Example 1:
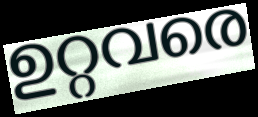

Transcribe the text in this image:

ഉറ്റവരെ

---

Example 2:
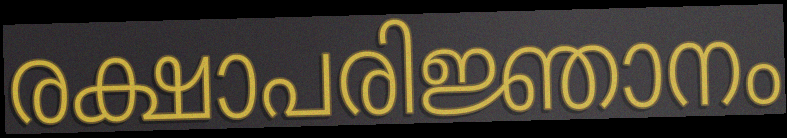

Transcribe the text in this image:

രക്ഷാപരിജ്ഞാനം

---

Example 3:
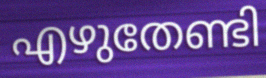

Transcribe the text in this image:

എഴുതേണ്ടി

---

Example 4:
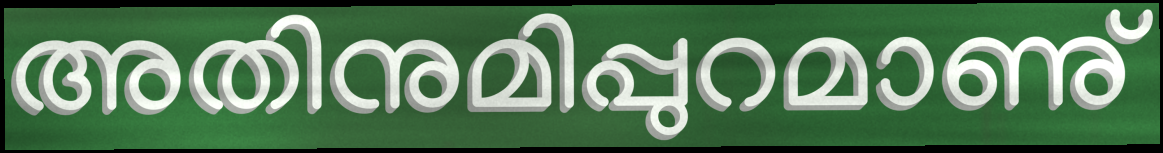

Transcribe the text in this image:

അതിനുമിപ്പുറമാണു്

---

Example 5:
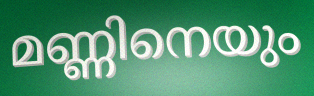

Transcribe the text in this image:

മണ്ണിനെയും